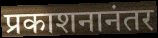
प्रकाशनानंतर